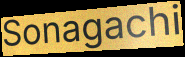
Sonagachi